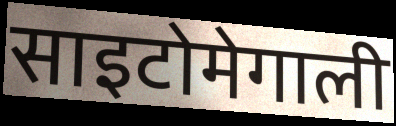
साइटोमेगाली